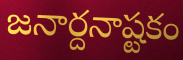
జనార్దనాష్టకం